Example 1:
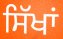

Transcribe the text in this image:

ਸਿੱਖਾਂ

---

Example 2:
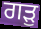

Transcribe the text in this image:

ਗੜੁ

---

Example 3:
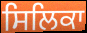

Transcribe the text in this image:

ਸਿਲਿਕਾ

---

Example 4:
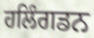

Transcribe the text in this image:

ਹਲਿੰਗਡਨ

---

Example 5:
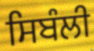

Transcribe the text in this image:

ਸਿਬੰਲੀ